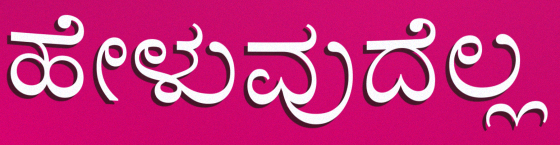
ಹೇಳುವುದೆಲ್ಲ